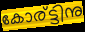
കോര്ട്ടിനു